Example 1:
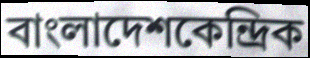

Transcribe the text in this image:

বাংলাদেশকেন্দ্রিক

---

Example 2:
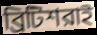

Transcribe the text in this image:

ব্রিটিশরাই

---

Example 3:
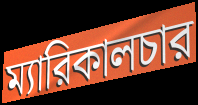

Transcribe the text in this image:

ম্যারিকালচার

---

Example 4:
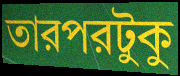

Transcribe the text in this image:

তারপরটুকু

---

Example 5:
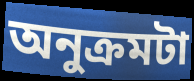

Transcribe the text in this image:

অনুক্রমটা